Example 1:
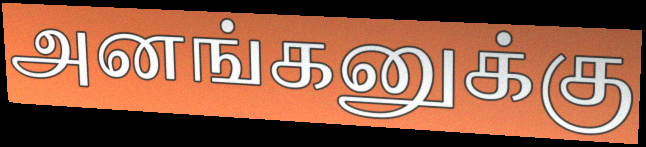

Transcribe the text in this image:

அனங்கனுக்கு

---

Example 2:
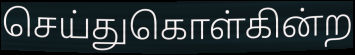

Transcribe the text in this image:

செய்துகொள்கின்ற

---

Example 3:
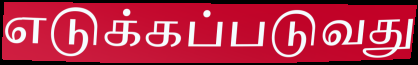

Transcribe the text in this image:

எடுக்கப்படுவது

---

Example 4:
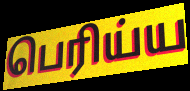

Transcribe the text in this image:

பெரிய்ய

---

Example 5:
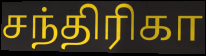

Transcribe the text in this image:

சந்திரிகா